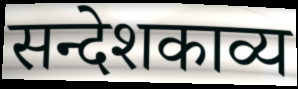
सन्देशकाव्य